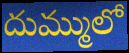
దుమ్ములో